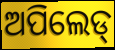
ଅପିଲେଡ୍